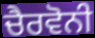
ਚੈਰਵੋਨੀ